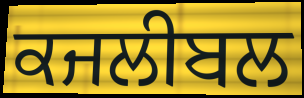
ਕਜਲੀਬਲ